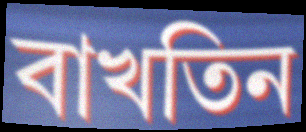
বাখতিন